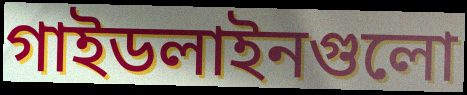
গাইডলাইনগুলো